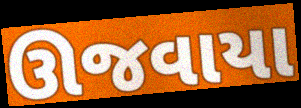
ઊજવાયા